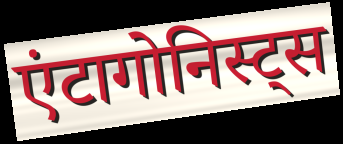
एंटागोनिस्ट्स